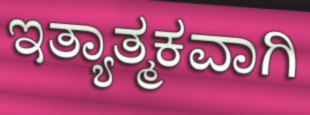
ಇತ್ಯಾತ್ಮಕವಾಗಿ